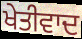
ਖੇਤੀਵਾਦ